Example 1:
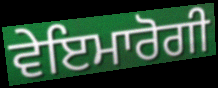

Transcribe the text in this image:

ਵੇਇਮਾਰੋਗੀ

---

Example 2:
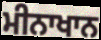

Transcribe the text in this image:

ਮੀਨਾਖਾਨ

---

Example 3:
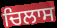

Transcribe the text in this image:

ਚਿਲਾਸ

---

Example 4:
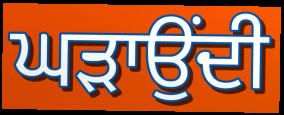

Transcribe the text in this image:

ਘੜਾਉਂਦੀ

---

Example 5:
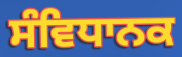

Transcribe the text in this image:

ਸੰਵਿਧਾਨਕ